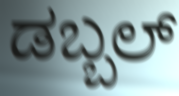
ಡಬ್ಬಲ್